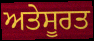
ਅਤੇਸੂਰਤ